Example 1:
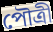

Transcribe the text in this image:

পৌত্রী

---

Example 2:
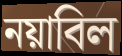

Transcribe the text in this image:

নয়াবিল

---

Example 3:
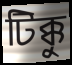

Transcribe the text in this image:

টিক্কু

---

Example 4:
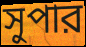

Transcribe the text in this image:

সুপার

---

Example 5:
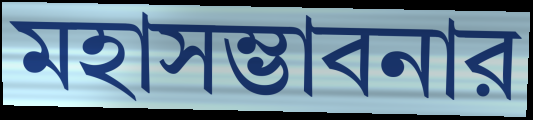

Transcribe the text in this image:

মহাসম্ভাবনার